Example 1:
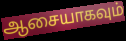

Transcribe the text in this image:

ஆசையாகவும்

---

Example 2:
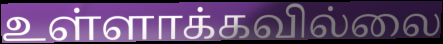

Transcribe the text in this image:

உள்ளாக்கவில்லை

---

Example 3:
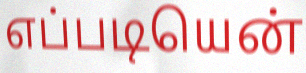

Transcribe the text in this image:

எப்படியென்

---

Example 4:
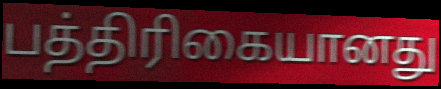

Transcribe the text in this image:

பத்திரிகையானது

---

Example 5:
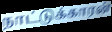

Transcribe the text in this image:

நாட்டுக்காரன்